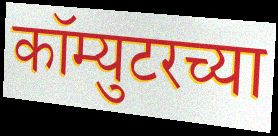
कॉम्युटरच्या